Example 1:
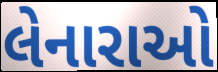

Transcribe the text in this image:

લેનારાઓ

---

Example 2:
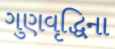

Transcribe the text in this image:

ગુણવૃદ્ધિના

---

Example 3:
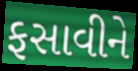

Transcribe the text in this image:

ફસાવીને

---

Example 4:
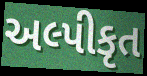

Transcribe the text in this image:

અલ્પીકૃત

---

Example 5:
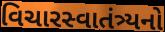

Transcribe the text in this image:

વિચારસ્વાતંત્ર્યનો